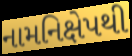
નામનિક્ષેપથી